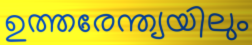
ഉത്തരേന്ത്യയിലും